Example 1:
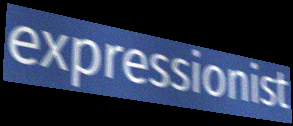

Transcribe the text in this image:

expressionist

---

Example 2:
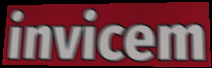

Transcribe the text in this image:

invicem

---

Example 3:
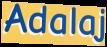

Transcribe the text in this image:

Adalaj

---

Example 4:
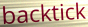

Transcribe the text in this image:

backtick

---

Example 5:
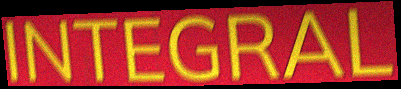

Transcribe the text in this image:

INTEGRAL